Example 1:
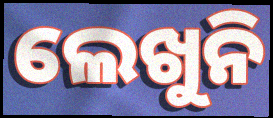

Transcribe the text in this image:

ଲେଖୁନି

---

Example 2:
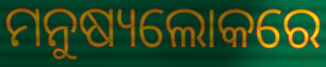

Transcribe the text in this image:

ମନୁଷ୍ୟଲୋକରେ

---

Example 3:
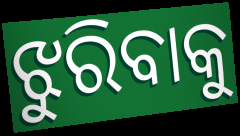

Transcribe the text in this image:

ଝୁରିବାକୁ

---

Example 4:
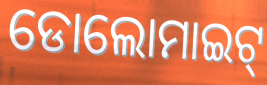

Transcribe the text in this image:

ଡୋଲୋମାଇଟ୍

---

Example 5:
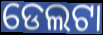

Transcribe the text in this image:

ଡେଲଟା